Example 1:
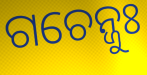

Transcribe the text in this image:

ଗଚେନ୍ଜୁଃ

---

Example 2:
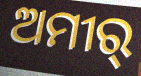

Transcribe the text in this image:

ଅମୀର୍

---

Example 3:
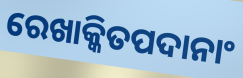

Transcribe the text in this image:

ରେଖାକ୍କିତପଦାନାଂ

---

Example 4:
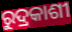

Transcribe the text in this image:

ରୁଦ୍ରକାଶୀ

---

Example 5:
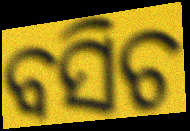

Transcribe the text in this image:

ବସିଚ